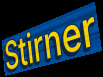
Stirner